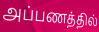
அப்பணத்தில்